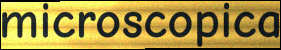
microscopica